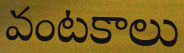
వంటకాలు